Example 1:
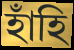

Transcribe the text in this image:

হাঁহি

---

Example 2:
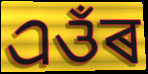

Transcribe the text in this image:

এওঁৰ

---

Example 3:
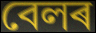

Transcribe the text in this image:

বেলৰ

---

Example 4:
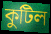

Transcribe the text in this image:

কুটিল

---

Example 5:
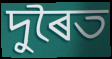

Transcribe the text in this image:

দুৰৈত